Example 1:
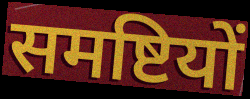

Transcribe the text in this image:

समष्टियों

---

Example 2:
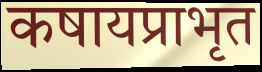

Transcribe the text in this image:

कषायप्राभृत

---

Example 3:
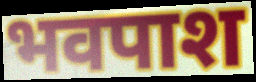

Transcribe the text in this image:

भवपाश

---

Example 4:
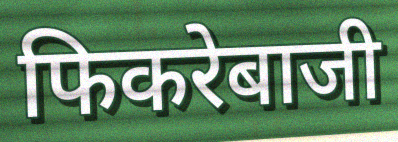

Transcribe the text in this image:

फिकरेबाजी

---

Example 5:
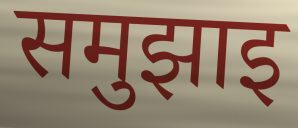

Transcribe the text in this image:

समुझाइ